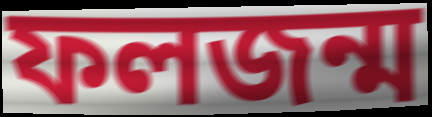
ফলজন্ম